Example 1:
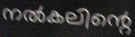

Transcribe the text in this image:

നൽകലിന്റെ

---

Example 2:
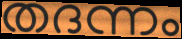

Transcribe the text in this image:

തദന്നം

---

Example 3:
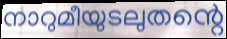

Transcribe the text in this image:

നാറുമീയുടലുതന്റെ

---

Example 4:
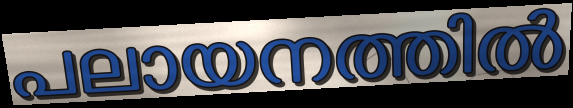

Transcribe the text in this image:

പലായനത്തിൽ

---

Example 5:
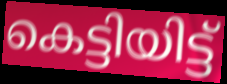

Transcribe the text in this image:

കെട്ടിയിട്ട്